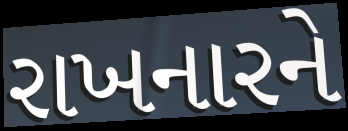
રાખનારને